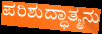
ಪರಿಶುದ್ಧಾತ್ಮನು